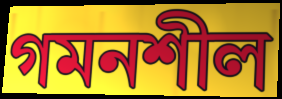
গমনশীল